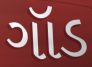
ગૉડ